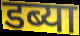
डब्या